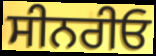
ਸੀਨਰੀਓ